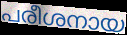
പരീശനായ